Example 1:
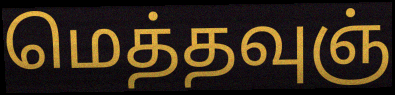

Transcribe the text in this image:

மெத்தவுஞ்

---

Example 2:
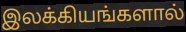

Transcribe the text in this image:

இலக்கியங்களால்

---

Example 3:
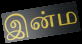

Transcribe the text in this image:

இன்ம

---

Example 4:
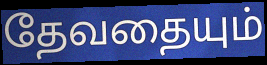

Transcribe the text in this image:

தேவதையும்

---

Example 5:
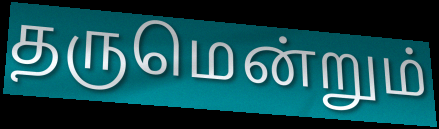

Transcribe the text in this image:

தருமென்றும்